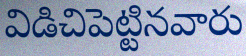
విడిచిపెట్టినవారు